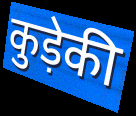
कुड़ेकी